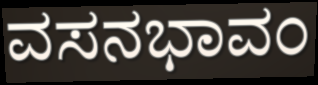
ವಸನಭಾವಂ